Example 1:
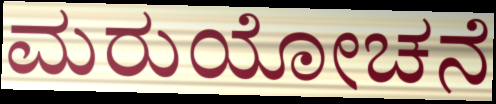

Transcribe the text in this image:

ಮರುಯೋಚನೆ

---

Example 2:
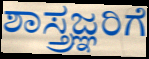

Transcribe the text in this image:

ಶಾಸ್ತ್ರಜ್ಞರಿಗೆ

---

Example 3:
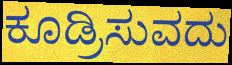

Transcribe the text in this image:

ಕೂಡ್ರಿಸುವದು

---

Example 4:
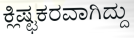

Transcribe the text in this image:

ಕ್ಲಿಷ್ಟಕರವಾಗಿದ್ದು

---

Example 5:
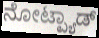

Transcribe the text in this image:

ನೋಟ್ಪ್ಯಾಡ್